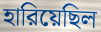
হারিয়েছিল